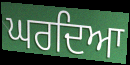
ਘਰਦਿਆ